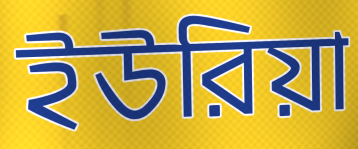
ইউরিয়া